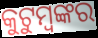
କୁଟୁମ୍ବଙ୍କର